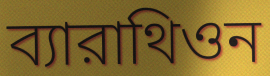
ব্যারাথিওন